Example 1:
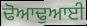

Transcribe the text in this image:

ਢੋਆਢੁਆਈ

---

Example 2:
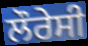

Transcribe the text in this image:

ਲੌਰੇਸੀ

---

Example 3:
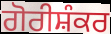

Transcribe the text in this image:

ਗੋਰੀਸ਼ੰਕਰ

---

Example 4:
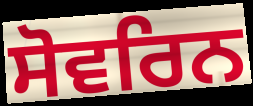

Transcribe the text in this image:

ਸੋਵਰਿਨ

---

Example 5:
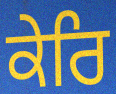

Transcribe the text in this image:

ਕੇਰਿ